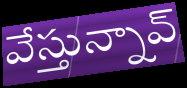
వేస్తున్నావ్